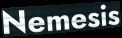
Nemesis